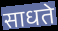
साधते